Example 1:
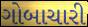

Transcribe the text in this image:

ગોબાચારી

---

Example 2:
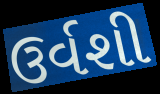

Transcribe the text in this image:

ઉર્વશી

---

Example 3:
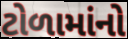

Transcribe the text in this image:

ટોળામાંનો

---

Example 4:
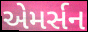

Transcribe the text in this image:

એમર્સન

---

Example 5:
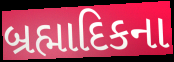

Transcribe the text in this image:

બ્રહ્માદિકના